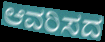
ಆವರಿಸದ